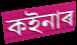
কইনাৰ